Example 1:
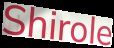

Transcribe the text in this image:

Shirole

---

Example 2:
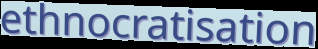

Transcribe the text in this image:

ethnocratisation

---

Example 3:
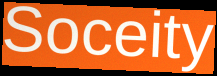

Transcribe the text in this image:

Soceity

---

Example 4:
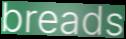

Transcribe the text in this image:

breads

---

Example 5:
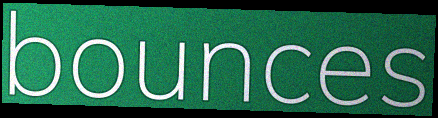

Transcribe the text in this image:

bounces